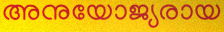
അനുയോജ്യരായ